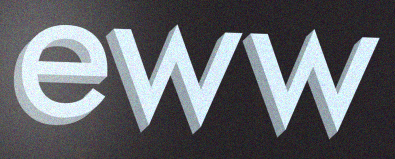
eww